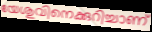
യേശുവിനെക്കുറിച്ചാണ്